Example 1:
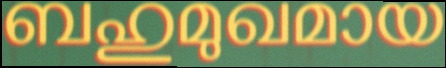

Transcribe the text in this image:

ബഹുമുഖമായ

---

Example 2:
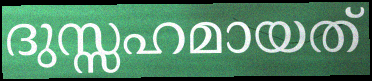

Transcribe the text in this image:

ദുസ്സഹമായത്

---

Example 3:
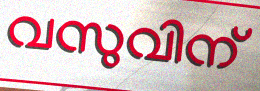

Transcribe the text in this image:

വസുവിന്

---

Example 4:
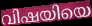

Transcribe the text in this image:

വിഷയിയെ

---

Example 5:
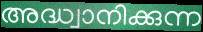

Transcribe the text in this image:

അദ്ധ്വാനിക്കുന്ന